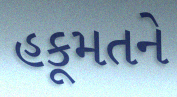
હકૂમતને